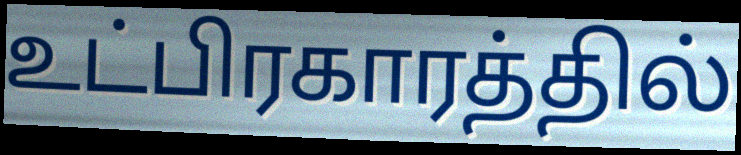
உட்பிரகாரத்தில்